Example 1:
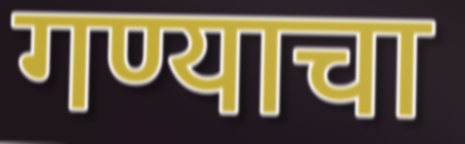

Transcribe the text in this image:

गण्याचा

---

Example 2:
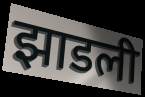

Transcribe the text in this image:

झाडली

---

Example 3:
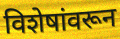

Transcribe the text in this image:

विशेषांवरून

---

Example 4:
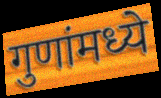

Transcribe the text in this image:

गुणांमध्ये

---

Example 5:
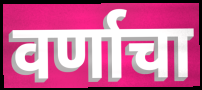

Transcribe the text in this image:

वर्णाचा